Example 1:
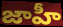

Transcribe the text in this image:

జాహీ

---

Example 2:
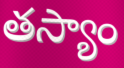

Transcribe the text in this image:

తస్యాం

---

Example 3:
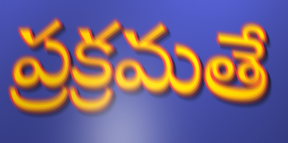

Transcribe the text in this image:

ప్రక్రమతే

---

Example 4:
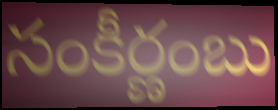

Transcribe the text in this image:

సంకీర్ణంబు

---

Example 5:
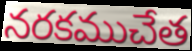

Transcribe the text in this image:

నరకముచేత